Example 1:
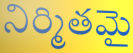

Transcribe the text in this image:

నిర్మితమై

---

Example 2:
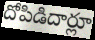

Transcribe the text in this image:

దోపిడిదార్లూ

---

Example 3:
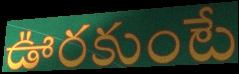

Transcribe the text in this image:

ఊరకుంటే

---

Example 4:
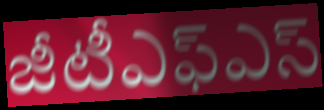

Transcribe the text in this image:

జీటీఎఫ్ఎస్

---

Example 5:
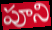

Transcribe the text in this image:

పూని